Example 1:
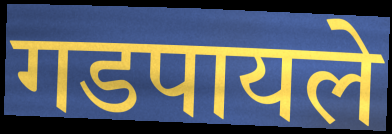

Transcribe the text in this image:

गडपायले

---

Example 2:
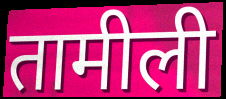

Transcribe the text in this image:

तामीली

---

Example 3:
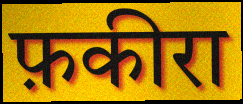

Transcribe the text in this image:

फ़कीरा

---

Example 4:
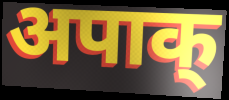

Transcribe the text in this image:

अपाक्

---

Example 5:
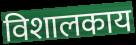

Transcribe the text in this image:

विशालकाय